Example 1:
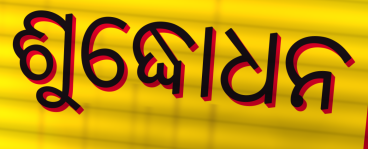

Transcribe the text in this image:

ଶୁଦ୍ଧୋଧନ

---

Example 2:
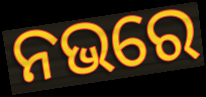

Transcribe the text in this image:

ନଭରେ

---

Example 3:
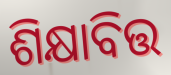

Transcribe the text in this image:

ଶିକ୍ଷାବିତ୍ତ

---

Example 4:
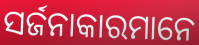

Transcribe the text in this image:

ସର୍ଜନାକାରମାନେ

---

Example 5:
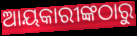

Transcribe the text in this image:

ଆୟକାରୀଙ୍କଠାରୁ